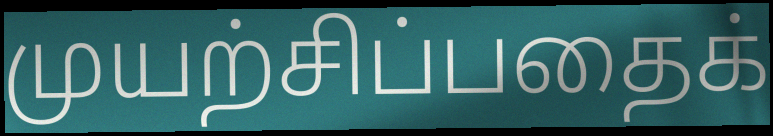
முயற்சிப்பதைக்